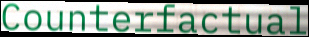
Counterfactual